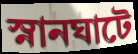
স্নানঘাটে